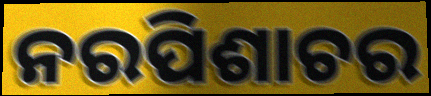
ନରପିଶାଚର